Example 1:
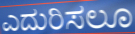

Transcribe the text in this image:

ಎದುರಿಸಲೂ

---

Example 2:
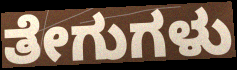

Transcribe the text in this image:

ತೇಗುಗಳು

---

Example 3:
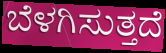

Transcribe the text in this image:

ಬೆಳಗಿಸುತ್ತದೆ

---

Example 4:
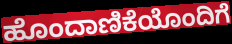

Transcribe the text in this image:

ಹೊಂದಾಣಿಕೆಯೊಂದಿಗೆ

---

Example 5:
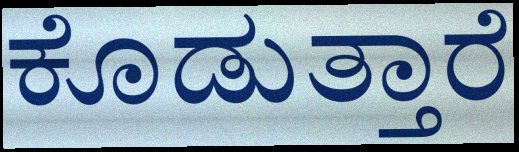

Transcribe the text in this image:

ಕೊಡುತ್ತಾರೆ